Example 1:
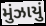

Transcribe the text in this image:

મુંઝાયું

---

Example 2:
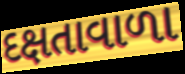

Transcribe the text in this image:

દક્ષતાવાળા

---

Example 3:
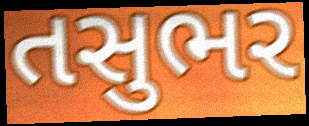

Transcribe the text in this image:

તસુભર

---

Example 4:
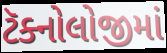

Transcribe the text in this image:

ટૅક્નોલોજીમાં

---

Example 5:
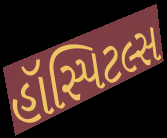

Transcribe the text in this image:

હૉસ્પિટલ્સ